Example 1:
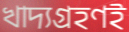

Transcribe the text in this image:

খাদ্যগ্রহণই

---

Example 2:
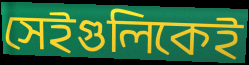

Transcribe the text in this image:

সেইগুলিকেই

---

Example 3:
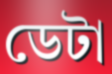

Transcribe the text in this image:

ডেটা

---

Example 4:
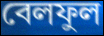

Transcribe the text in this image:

বেলফুল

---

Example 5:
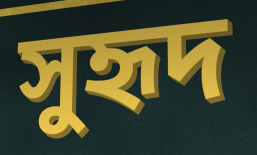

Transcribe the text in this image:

সুহৃদ